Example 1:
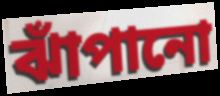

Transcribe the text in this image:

ঝাঁপানো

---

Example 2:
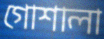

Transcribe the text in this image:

গোশালা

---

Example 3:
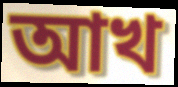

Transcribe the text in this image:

আখ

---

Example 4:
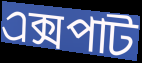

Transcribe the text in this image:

এক্সপাট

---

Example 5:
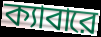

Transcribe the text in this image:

ক্যাবারে